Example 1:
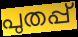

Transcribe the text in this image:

പുതപ്പ്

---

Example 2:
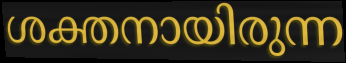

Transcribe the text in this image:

ശക്തനായിരുന്ന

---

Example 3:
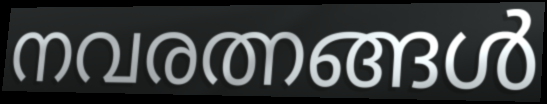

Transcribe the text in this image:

നവരത്നങ്ങൾ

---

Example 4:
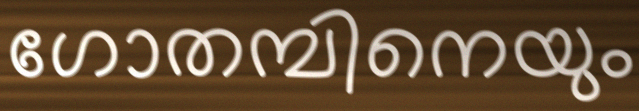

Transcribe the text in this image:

ഗോതമ്പിനെയും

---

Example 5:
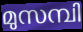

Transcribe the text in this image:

മുസമ്പി